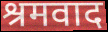
श्रमवाद